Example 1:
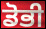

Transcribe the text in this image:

ਡੋਭੀ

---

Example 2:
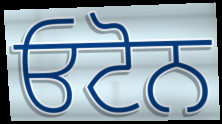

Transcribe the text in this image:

ਓਟੋਨ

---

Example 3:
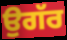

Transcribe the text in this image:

ਉਗੱਰ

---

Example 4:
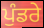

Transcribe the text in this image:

ਪੁੰਡਰੇ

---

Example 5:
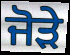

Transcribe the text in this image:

ਜੋਡ਼ੇ